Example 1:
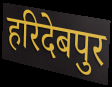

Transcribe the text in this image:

हरिदेबपुर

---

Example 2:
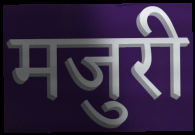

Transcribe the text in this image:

मजुरी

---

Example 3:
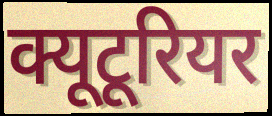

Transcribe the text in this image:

क्यूटूरियर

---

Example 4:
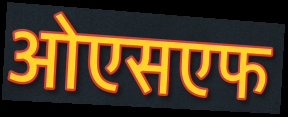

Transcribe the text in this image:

ओएसएफ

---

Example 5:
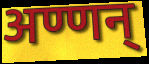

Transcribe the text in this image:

अण्णन्